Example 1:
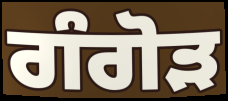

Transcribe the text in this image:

ਗੰਗੋੜ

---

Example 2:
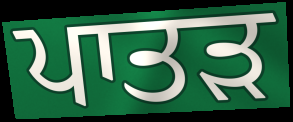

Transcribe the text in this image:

ਪਾਤੜ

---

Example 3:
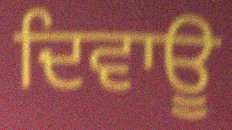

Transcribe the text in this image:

ਦਿਵਾਊ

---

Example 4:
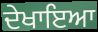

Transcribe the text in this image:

ਦੇਖਾਇਆ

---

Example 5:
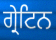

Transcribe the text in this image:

ਗ੍ਰੇਟਿਨ